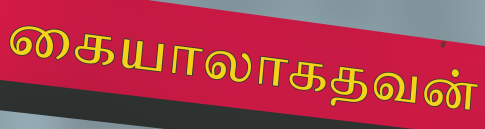
கையாலாகதவன்